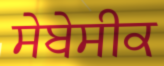
ਸੇਬੇਸੀਕ